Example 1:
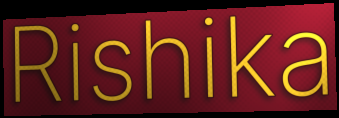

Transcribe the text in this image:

Rishika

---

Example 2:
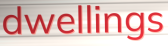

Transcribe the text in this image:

dwellings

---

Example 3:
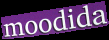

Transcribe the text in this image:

moodida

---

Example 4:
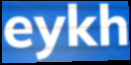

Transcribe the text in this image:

eykh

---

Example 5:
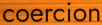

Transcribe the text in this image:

coercion